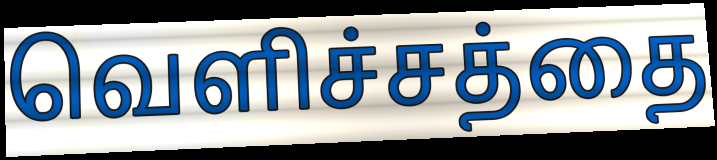
வெளிச்சத்தை